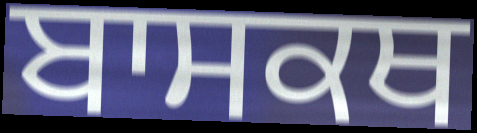
ਬਾਸਕਥ